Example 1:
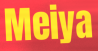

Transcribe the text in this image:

Meiya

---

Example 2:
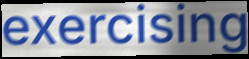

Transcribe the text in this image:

exercising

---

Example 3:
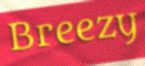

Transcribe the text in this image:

Breezy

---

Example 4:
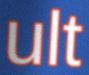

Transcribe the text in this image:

ult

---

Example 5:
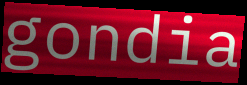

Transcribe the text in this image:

gondia